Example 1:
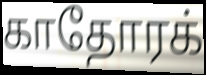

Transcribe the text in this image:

காதோரக்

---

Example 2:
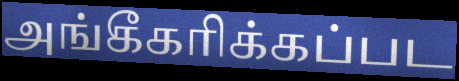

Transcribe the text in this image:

அங்கீகரிக்கப்பட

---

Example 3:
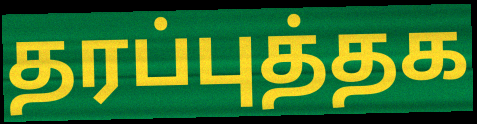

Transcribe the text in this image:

தரப்புத்தக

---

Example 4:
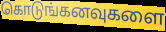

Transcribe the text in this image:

கொடுங்கனவுகளை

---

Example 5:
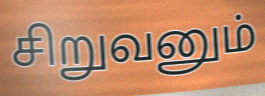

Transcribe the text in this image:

சிறுவனும்